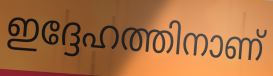
ഇദ്ദേഹത്തിനാണ്